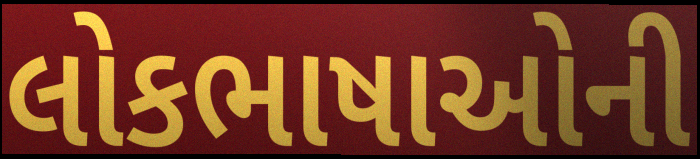
લોકભાષાઓની